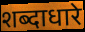
शब्दाधारे